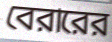
বেরারের